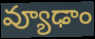
వ్యూఢాం